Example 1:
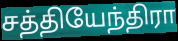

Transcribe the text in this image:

சத்தியேந்திரா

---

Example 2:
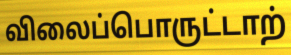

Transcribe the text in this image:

விலைப்பொருட்டாற்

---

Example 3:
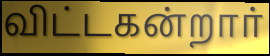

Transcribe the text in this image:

விட்டகன்றார்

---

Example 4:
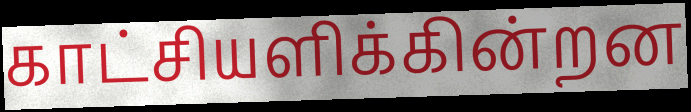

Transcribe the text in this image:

காட்சியளிக்கின்றன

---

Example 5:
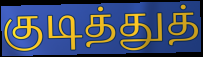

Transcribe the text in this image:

குடித்துத்